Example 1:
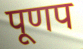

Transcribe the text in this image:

पूणप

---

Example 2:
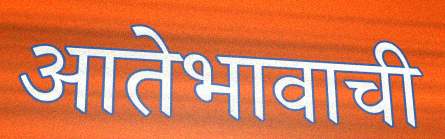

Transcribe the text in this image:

आतेभावाची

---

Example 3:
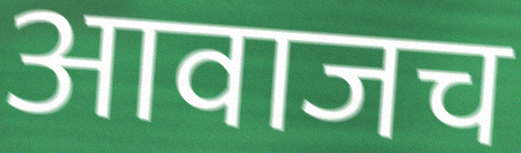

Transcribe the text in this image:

आवाजच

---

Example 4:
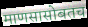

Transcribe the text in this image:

माणसासोबतच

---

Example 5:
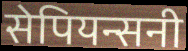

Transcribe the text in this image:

सेपियन्सनी